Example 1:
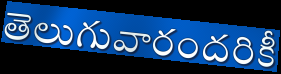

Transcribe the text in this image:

తెలుగువారందరికీ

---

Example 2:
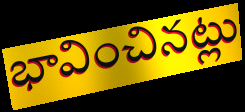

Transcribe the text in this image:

భావించినట్లు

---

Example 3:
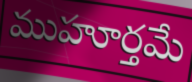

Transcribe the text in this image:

ముహూర్తమే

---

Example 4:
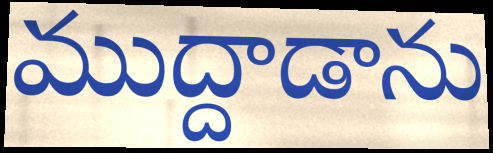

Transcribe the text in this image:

ముద్దాడాను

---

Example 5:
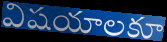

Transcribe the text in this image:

విషయాలకూ